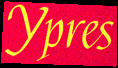
Ypres